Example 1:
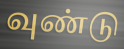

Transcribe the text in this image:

வுண்டு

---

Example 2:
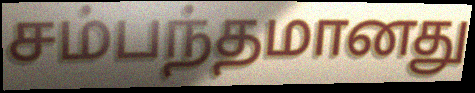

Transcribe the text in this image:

சம்பந்தமானது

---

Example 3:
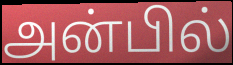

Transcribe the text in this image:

அன்பில்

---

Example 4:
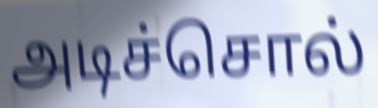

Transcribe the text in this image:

அடிச்சொல்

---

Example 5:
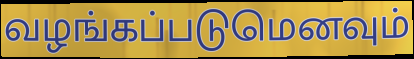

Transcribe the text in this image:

வழங்கப்படுமெனவும்